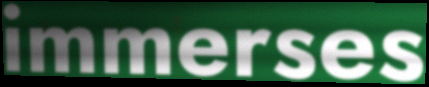
immerses